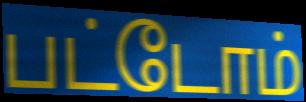
பட்டோம்